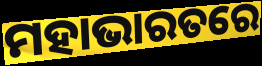
ମହାଭାରତରେ